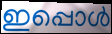
ഇപ്പൊൾ